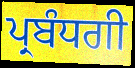
ਪ੍ਰਬੰਧਗੀ